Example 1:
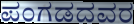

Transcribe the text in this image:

ಪಂಗಡದವರ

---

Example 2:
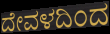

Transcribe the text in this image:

ದೇವಳದಿಂದ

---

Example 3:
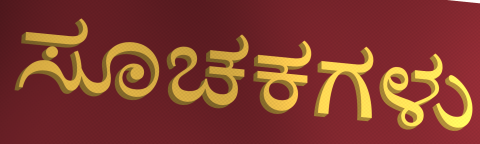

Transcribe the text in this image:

ಸೂಚಕಗಳು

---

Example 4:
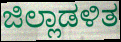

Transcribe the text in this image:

ಜಿಲ್ಲಾಡಳಿತ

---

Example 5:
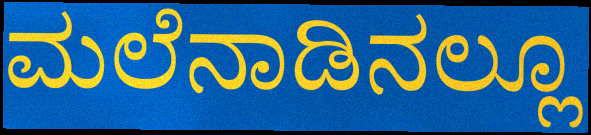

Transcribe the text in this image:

ಮಲೆನಾಡಿನಲ್ಲೂ